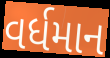
વર્ધમાન